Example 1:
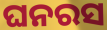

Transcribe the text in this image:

ଘନରସ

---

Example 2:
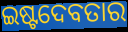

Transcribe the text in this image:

ଇଷ୍ଟଦେବତାର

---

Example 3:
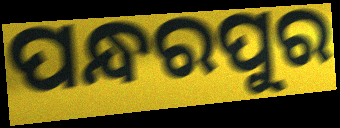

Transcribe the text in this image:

ପନ୍ଧରପୁର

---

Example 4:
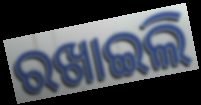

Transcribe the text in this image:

ରଖାଇଲି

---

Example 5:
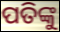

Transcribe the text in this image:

ପତିଙ୍କୁ